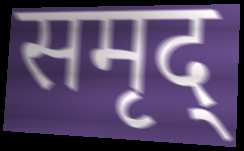
समृद्